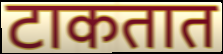
टाकतात